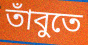
তাঁবুতে